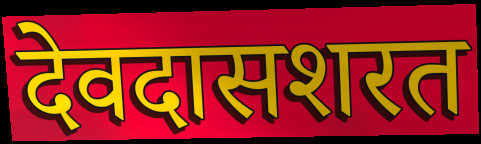
देवदासशरत